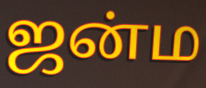
ஜன்ம